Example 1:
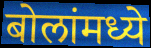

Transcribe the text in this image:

बोलांमध्ये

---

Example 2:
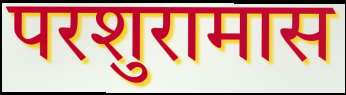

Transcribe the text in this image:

परशुरामास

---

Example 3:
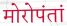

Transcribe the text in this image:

मोरोपंतां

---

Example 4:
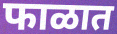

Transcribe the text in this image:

फाळात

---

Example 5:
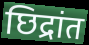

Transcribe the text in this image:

छिद्रांत